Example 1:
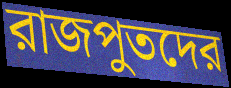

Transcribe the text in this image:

রাজপুতদের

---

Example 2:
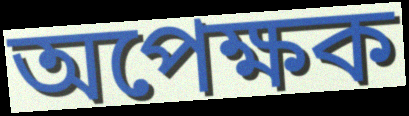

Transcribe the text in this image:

অপেক্ষক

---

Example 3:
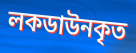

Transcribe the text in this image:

লকডাউনকৃত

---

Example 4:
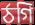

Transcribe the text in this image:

ঠগি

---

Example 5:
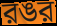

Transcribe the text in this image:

রঙর